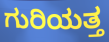
ಗುರಿಯತ್ತ